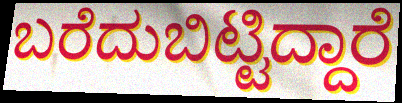
ಬರೆದುಬಿಟ್ಟಿದ್ದಾರೆ